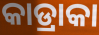
କାଡ୍ରାକା